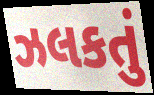
ઝલકતું